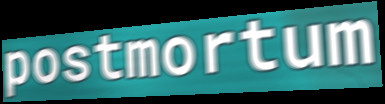
postmortum